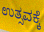
ಉತ್ಸವಕ್ಕೆ